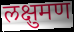
लक्षुमण